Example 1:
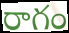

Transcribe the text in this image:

రాగం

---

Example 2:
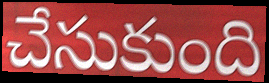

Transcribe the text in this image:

చేసుకుంది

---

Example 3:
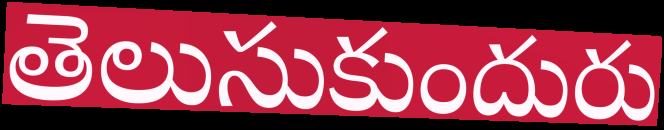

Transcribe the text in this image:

తెలుసుకుందురు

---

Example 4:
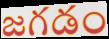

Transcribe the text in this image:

జగడం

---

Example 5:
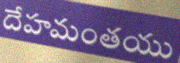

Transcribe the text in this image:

దేహమంతయు